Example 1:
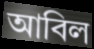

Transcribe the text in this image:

আবিল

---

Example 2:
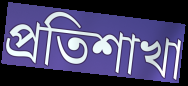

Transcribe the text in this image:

প্রতিশাখা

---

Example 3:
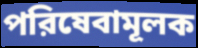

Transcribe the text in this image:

পরিষেবামূলক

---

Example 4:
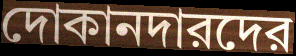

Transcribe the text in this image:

দোকানদারদের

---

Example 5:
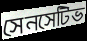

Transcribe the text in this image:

সেনসেটিভ